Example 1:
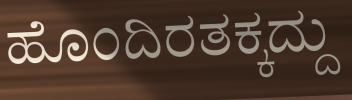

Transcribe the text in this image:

ಹೊಂದಿರತಕ್ಕದ್ದು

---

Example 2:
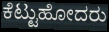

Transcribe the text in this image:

ಕೆಟ್ಟುಹೋದರು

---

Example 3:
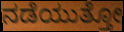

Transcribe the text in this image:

ನಡೆಯುತ್ತೋ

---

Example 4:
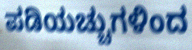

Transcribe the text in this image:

ಪಡಿಯಚ್ಚುಗಳಿಂದ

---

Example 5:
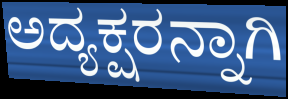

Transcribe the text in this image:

ಅದ್ಯಕ್ಷರನ್ನಾಗಿ